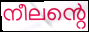
നീലന്റെ